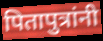
पितापुत्रांनी